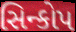
સિન્કોપ